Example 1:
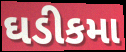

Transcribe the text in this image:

ઘડીકમા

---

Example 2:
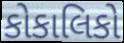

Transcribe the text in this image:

કોકાલિકો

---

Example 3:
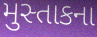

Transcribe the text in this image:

મુસ્તાકના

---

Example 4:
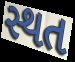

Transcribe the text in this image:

સ્થત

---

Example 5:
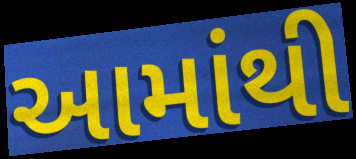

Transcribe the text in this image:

આમાંથી